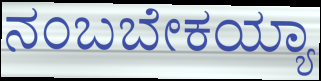
ನಂಬಬೇಕಯ್ಯಾ